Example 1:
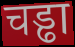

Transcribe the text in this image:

चड्ढा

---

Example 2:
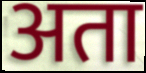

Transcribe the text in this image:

अता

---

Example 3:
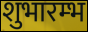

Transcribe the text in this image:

शुभारम्‍भ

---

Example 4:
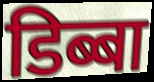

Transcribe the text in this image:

डिब्बा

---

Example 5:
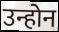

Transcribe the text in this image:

उन्होन